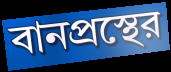
বানপ্রস্থের